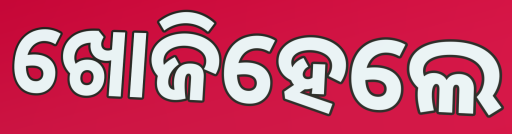
ଖୋଜିହେଲେ